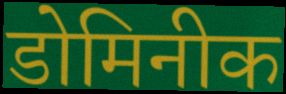
डोमिनीक